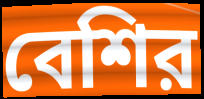
বেশির